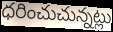
ధరించుచున్నట్లు